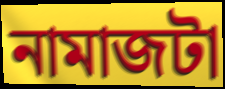
নামাজটা